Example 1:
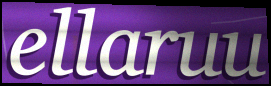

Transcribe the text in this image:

ellaruu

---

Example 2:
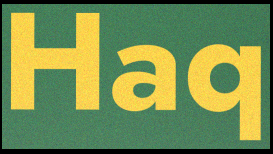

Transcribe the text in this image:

Haq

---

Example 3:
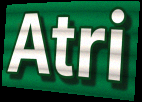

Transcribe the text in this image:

Atri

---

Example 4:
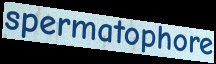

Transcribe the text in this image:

spermatophore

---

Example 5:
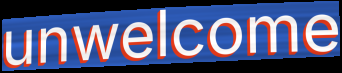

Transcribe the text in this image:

unwelcome